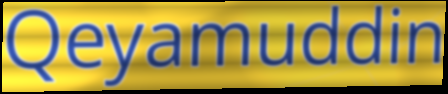
Qeyamuddin